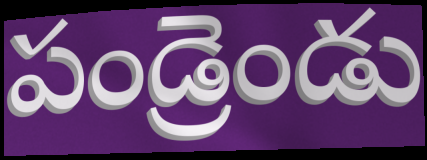
పండ్రెండు